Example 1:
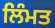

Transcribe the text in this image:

ਲਿੰਮਤ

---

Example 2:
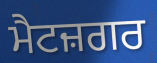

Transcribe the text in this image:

ਮੈਟਜ਼ਗਰ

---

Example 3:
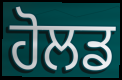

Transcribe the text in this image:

ਹੋਲਡ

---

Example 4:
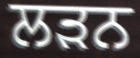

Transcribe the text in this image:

ਲੜਨ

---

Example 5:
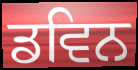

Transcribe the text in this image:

ਡਵਿਨ